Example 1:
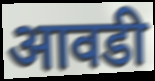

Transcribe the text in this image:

आवडी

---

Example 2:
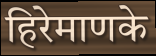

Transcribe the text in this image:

हिरेमाणके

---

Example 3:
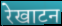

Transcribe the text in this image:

रेखाटन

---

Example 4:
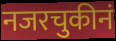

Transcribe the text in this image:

नजरचुकीनं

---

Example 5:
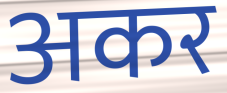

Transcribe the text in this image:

अकर